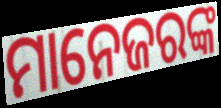
ମାନେଜରଙ୍କ